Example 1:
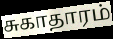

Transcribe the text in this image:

சுகாதாரம்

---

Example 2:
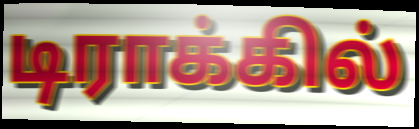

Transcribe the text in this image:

டிராக்கில்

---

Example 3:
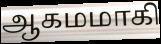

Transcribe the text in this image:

ஆகமமாகி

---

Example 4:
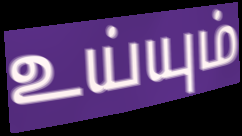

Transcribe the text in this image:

உய்யும்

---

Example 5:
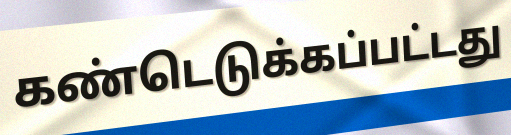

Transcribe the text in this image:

கண்டெடுக்கப்பட்டது